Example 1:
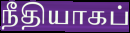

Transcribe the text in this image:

நீதியாகப்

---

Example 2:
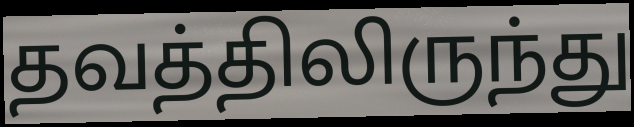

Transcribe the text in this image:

தவத்திலிருந்து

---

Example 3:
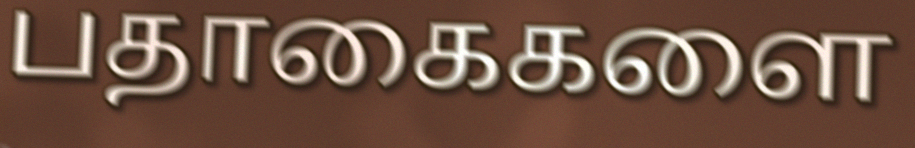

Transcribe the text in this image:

பதாகைகளை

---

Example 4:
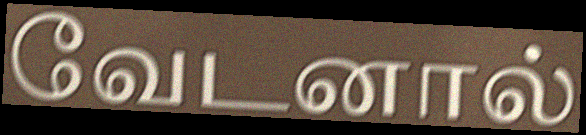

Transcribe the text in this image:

வேடனால்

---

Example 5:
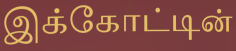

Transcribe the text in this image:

இக்கோட்டின்